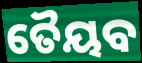
ତୈୟବ